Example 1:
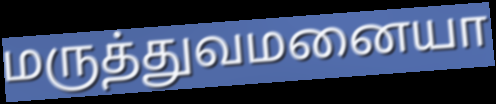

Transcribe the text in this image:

மருத்துவமனையா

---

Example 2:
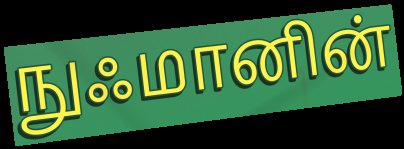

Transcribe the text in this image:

நுஃமானின்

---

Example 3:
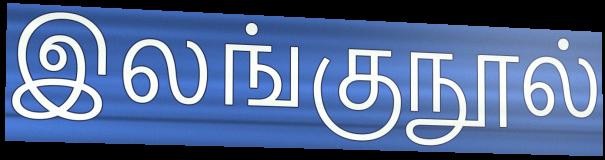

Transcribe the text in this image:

இலங்குநூல்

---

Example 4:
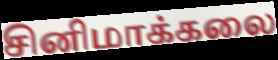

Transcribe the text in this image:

சினிமாக்கலை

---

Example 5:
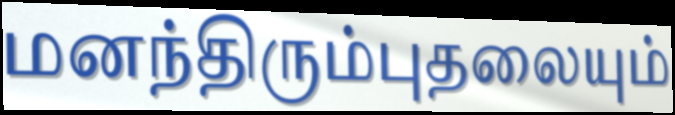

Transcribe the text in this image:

மனந்திரும்புதலையும்